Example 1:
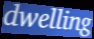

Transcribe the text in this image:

dwelling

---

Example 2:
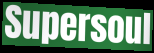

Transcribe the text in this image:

Supersoul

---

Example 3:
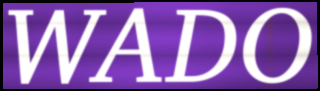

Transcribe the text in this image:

WADO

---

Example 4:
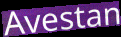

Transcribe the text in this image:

Avestan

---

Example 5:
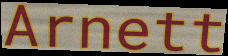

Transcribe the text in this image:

Arnett